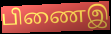
பிணைஇ